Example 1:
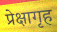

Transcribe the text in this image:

प्रेक्षागृह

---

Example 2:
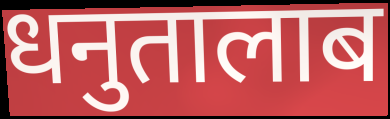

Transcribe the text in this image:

धनुतालाब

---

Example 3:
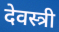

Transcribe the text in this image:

देवस्त्री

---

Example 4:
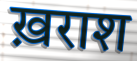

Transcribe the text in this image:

ख़राश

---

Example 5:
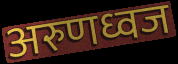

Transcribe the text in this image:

अरुणध्वज